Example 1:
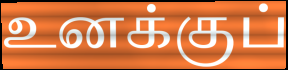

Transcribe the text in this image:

உனக்குப்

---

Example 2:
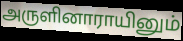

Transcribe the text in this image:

அருளினாராயினும்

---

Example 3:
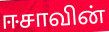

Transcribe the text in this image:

ஈசாவின்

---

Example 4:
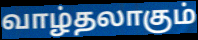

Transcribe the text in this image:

வாழ்தலாகும்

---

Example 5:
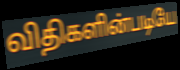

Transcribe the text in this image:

விதிகளின்படியே